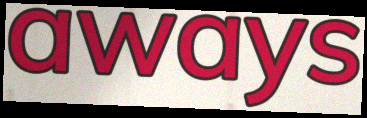
aways